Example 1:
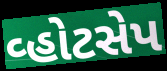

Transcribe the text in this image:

વ્હોટસેપ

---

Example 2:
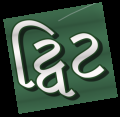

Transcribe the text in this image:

ટ્વિટ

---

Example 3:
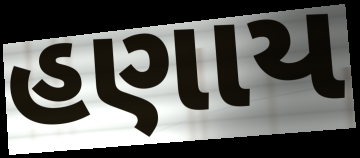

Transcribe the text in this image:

હણાય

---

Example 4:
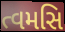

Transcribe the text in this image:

ત્વમસિ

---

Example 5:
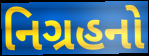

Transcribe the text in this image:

નિગ્રહનો